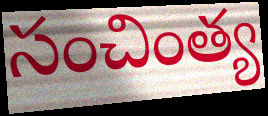
సంచింత్య